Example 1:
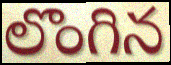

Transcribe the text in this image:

లొంగిన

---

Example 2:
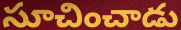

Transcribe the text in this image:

సూచించాడు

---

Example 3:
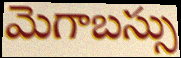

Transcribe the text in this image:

మెగాబస్సు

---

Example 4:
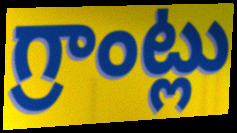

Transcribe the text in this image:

గ్రాంట్లు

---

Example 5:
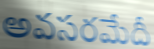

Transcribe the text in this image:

అవసరమేదీ